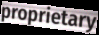
proprietary